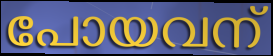
പോയവന്